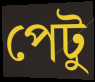
পেটু